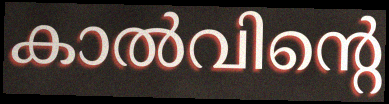
കാൽവിന്റെ